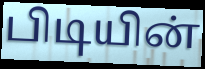
பிடியின்